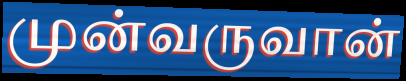
முன்வருவான்